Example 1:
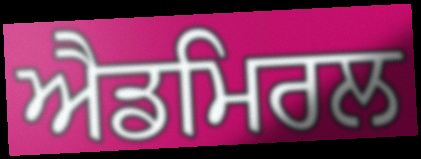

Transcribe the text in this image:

ਐਡਮਿਰਲ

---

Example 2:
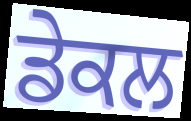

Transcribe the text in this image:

ਡੇਕਲ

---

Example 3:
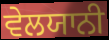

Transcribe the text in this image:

ਵੇਲਯਾਨੀ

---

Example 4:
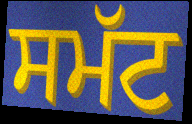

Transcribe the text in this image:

ਸਮੱਟ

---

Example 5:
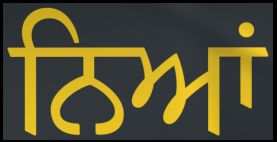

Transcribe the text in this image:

ਨਿਆਂ